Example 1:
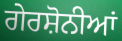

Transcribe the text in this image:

ਗੇਰਸ਼ੋਨੀਆਂ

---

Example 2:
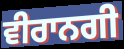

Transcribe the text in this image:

ਵੀਰਾਨਗੀ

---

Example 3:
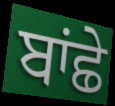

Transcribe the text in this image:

ਬਾਂਛੇ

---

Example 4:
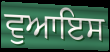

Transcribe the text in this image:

ਵੁਆਇਸ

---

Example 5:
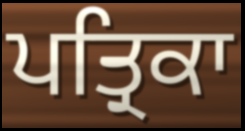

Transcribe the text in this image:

ਪਤ੍ਰਿਕਾ